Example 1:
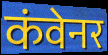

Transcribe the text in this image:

कंवेनर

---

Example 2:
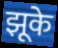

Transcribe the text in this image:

झूके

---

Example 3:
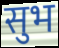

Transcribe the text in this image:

सुभ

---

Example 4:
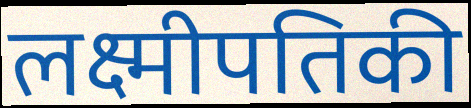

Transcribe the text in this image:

लक्ष्मीपतिकी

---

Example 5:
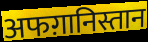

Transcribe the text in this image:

अफग़ानिस्तान